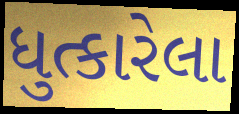
ધુત્કારેલા